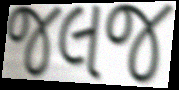
જલજ